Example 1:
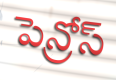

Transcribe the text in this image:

పెన్రోస్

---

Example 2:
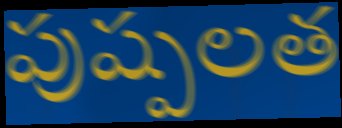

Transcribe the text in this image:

పుష్పలత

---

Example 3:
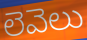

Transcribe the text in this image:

లెవెలు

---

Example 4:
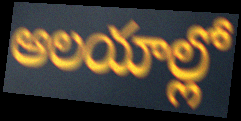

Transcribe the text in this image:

ఆలయాల్లో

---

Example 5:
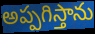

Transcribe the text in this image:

అప్పగిస్తాను